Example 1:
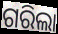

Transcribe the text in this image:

ଗରିଲା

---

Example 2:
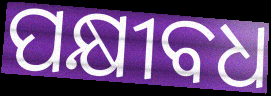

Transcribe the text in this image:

ପକ୍ଷୀବଧ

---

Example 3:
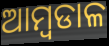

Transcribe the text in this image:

ଆମ୍ବଡାଳ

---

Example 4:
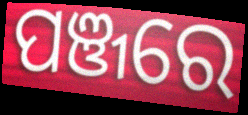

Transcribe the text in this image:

ପଞ୍ଜରେ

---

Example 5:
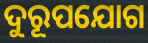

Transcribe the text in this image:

ଦୁରୂପଯୋଗ